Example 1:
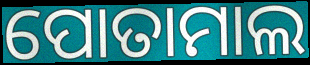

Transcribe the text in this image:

ପୋତାମାଲ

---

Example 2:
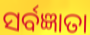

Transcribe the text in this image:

ସର୍ବଜ୍ଞାତା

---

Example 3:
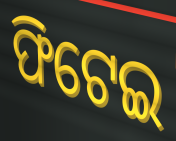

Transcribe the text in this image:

ଫିଟେଇ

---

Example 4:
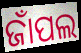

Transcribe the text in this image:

ଜାଁପଲ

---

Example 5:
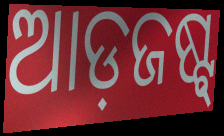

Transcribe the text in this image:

ଆଡ଼ଜଷ୍ଟ୍